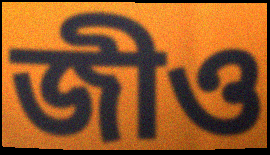
জীও